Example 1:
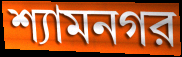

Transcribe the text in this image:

শ্যামনগর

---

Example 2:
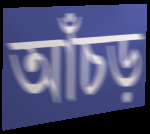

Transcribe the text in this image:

আঁচড়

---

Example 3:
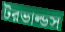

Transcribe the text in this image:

টরভাল্ডস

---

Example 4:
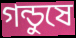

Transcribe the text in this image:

গন্ডুষে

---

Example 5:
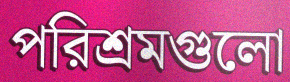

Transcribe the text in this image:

পরিশ্রমগুলো